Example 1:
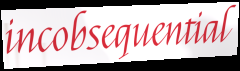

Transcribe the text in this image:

incobsequential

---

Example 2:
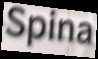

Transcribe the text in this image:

Spina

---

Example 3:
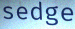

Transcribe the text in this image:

sedge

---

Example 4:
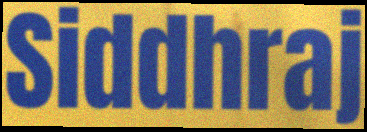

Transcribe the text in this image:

Siddhraj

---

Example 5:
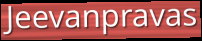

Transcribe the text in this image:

Jeevanpravas